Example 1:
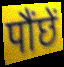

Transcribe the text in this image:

पौंछें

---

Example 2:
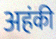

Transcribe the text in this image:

अहंकी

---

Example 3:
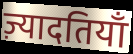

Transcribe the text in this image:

ज़्यादतियाँ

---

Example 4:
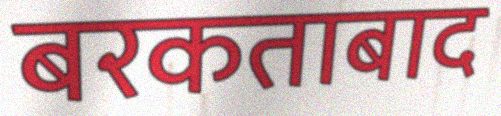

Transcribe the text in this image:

बरकताबाद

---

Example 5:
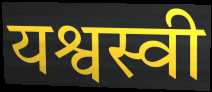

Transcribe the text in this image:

यश्वस्वी